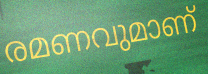
രമണവുമാണ്